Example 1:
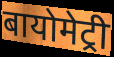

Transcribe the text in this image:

बायोमेट्री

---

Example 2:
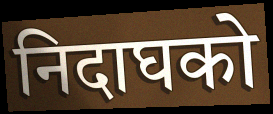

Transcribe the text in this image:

निदाघको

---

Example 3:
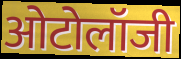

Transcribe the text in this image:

ओटोलॉजी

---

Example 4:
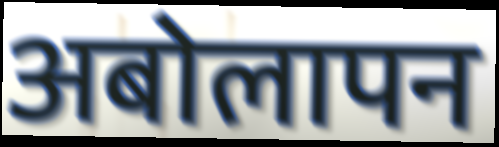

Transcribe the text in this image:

अबोलापन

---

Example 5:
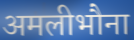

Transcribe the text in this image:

अमलीभौना